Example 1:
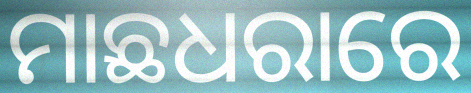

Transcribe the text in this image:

ମାଛଧରାରେ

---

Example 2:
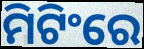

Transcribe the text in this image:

ମିଟିଂରେ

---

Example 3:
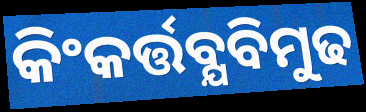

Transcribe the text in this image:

କିଂକର୍ତ୍ତବ୍ଯବିମୁଢ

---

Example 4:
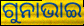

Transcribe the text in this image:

ଗୁନାଭାଇ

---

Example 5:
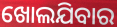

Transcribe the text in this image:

ଖୋଲଯିବାର